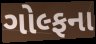
ગોલ્ફના